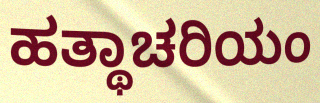
ಹತ್ಥಾಚರಿಯಂ